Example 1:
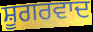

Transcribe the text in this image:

ਸ਼ੂਗਰਵਾਦ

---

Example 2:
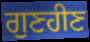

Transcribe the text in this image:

ਗੁਣਹੀਣ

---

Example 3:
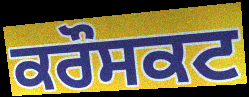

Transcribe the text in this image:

ਕਰੌਸਕਟ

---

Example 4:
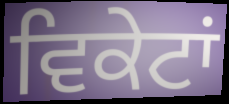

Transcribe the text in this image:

ਵਿਕੇਟਾਂ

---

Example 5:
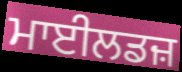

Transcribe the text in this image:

ਮਾਈਲਡਜ਼